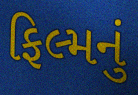
ફિલ્મનું